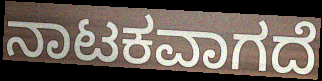
ನಾಟಕವಾಗದೆ